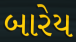
બારેય